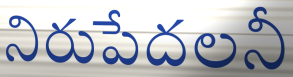
నిరుపేదలనీ